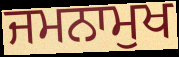
ਜਮਨਾਮੁਖ